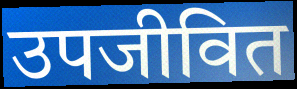
उपजीवित